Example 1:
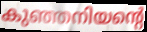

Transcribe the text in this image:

കുഞ്ഞനിയന്റെ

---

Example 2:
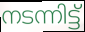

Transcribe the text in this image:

നടന്നിട്ട്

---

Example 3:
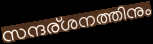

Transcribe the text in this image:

സന്ദര്ശനത്തിനും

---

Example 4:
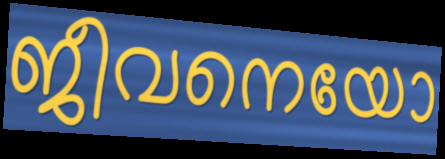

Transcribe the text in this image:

ജീവനെയോ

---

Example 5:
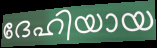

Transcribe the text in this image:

ദേഹിയായ